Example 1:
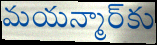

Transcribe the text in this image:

మయన్మార్‌కు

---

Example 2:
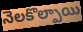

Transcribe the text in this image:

నెలకొల్పాయి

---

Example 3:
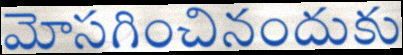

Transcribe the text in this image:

మోసగించినందుకు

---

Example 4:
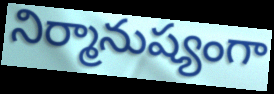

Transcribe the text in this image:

నిర్మానుష్యంగా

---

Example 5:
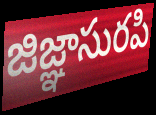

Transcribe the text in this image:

జిజ్ఞాసురపి